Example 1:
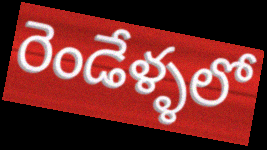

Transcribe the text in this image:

రెండేళ్ళలో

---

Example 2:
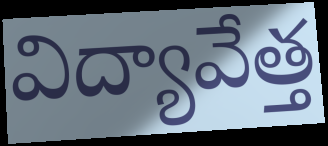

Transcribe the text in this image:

విద్యావేత్త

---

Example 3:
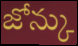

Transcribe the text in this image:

జోన్కు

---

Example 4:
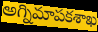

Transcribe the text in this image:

అగ్నిమాపకశాఖ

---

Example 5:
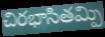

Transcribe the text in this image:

చిరభాసితమ్పి